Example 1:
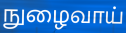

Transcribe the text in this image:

நுழைவாய்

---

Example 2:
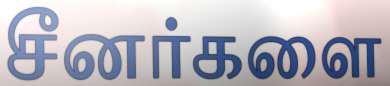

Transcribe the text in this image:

சீனர்களை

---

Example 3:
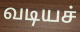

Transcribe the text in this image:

வடியச்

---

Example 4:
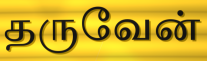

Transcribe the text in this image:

தருவேன்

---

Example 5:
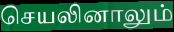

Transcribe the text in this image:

செயலினாலும்